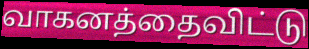
வாகனத்தைவிட்டு